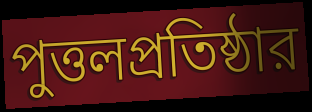
পুত্তলপ্রতিষ্ঠার